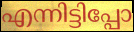
എന്നിട്ടിപ്പോ